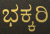
ಭಕ್ಕರಿ